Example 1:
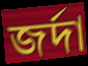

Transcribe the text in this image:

জর্দা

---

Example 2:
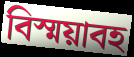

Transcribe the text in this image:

বিস্ময়াবহ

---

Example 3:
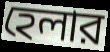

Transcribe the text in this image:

হেলার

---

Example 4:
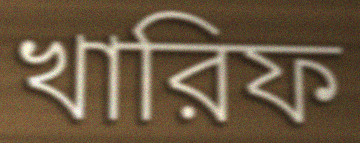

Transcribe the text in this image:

খারিফ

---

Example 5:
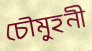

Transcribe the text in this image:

চৌমুহনী